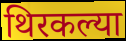
थिरकल्या